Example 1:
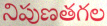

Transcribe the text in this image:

నిపుణతగల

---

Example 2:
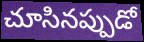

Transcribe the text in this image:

చూసినప్పుడో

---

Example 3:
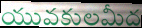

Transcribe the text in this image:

యువకులమీద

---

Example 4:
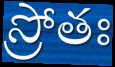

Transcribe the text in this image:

స్రోతః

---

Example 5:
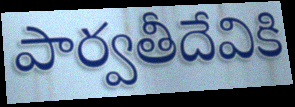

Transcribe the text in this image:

పార్వతీదేవికి